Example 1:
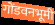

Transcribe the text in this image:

गोंडवनभूमी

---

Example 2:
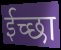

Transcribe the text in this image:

ईच्छा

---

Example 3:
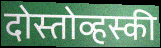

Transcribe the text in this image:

दोस्तोव्हस्की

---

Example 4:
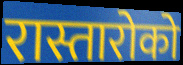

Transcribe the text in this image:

रास्तारोको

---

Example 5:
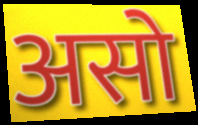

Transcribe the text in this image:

असो